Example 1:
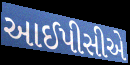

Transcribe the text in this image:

આઈપીસીએ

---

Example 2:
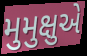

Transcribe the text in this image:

મુમુક્ષુએ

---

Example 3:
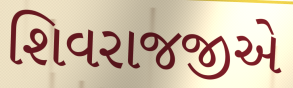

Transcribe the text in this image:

શિવરાજજીએ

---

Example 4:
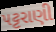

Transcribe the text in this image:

પટ્ટરાણી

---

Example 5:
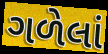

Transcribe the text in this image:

ગળેલાં